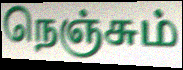
நெஞ்சும்